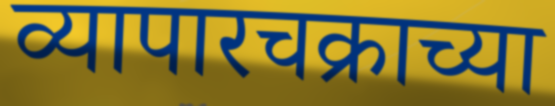
व्यापारचक्राच्या